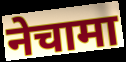
नेचामा